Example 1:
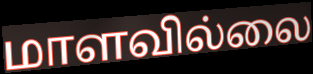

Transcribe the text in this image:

மாளவில்லை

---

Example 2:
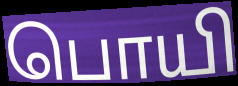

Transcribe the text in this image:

பொயி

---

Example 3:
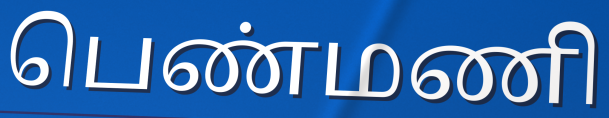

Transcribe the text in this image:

பெண்மணி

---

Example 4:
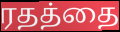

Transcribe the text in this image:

ரதத்தை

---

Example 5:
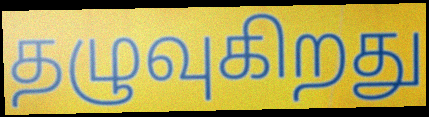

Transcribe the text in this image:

தழுவுகிறது